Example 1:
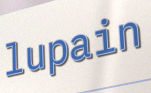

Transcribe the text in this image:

lupain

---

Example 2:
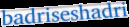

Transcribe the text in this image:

badriseshadri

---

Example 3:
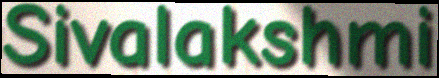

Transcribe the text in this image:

Sivalakshmi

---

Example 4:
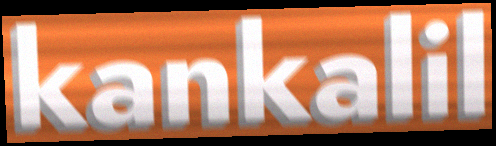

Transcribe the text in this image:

kankalil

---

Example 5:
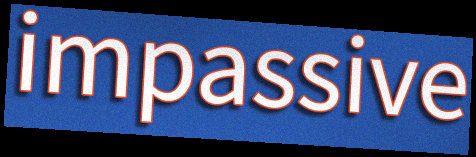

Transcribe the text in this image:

impassive